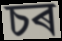
চৰ